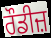
ਰੌਡੀਜ਼